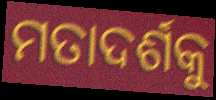
ମତାଦର୍ଶକୁ